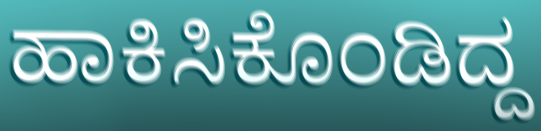
ಹಾಕಿಸಿಕೊಂಡಿದ್ದ